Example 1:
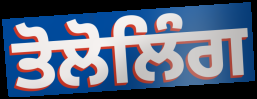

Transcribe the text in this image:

ਤੋਲੋਲਿੰਗ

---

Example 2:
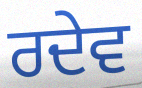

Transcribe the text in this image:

ਰਦੇਵ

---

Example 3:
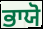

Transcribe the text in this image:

ਭਾਯੋ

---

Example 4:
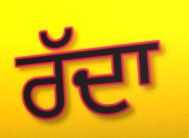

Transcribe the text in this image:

ਰੱਦਾ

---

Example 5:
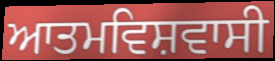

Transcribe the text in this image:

ਆਤਮਵਿਸ਼ਵਾਸੀ